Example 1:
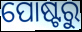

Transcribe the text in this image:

ପୋଷ୍ଟରୁ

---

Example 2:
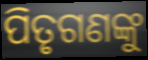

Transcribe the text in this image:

ପିତୃଗଣଙ୍କୁ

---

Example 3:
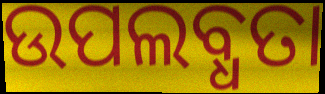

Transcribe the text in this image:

ଉପଲବ୍ଧତା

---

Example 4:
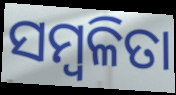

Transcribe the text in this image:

ସମ୍ବଳିତା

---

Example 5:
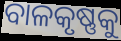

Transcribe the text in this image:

ବାଳକୃଷ୍ଣକୁ